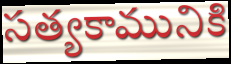
సత్యకామునికి